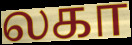
லகா